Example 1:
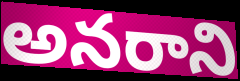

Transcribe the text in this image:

అనరాని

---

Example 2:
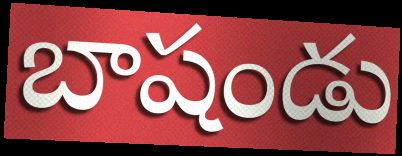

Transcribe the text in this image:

బాషండు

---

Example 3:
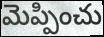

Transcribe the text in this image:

మెప్పించు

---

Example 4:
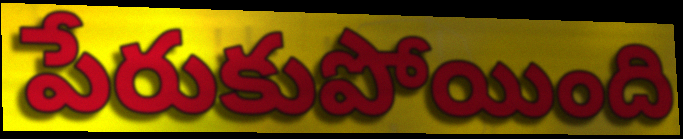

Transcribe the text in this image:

పేరుకుపోయింది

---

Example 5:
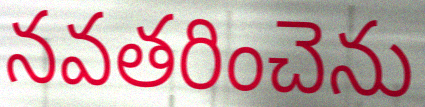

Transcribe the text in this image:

నవతరించెను